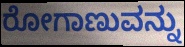
ರೋಗಾಣುವನ್ನು